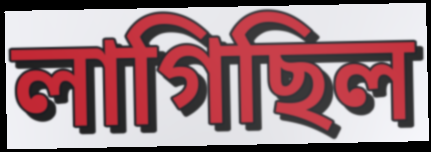
লাগিছিল